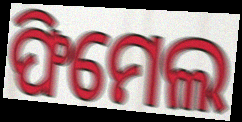
ଫିମେଲ